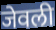
जेवली